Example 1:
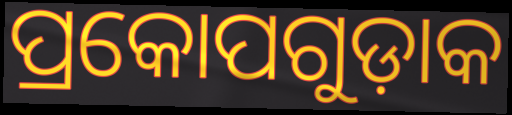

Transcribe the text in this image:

ପ୍ରକୋପଗୁଡ଼ାକ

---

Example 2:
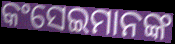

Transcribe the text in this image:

କଂସେଇମାନଙ୍କ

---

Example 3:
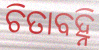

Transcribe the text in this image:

ଚିତାବହ୍ନି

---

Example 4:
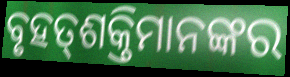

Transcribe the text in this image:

ବୃହତ୍‍ଶକ୍ତିମାନଙ୍କର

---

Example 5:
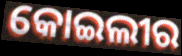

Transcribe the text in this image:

କୋଇଲୀର